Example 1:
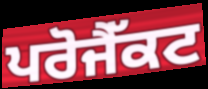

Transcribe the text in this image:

ਪਰੋਜੈੱਕਟ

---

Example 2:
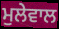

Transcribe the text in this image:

ਮੁਲੇਵਾਲ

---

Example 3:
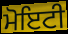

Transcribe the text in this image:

ਮੋਇਟੀ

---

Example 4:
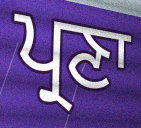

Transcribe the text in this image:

ਪ੍ਰਣਾ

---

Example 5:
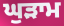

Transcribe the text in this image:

ਘੁੜਾਮ